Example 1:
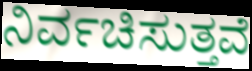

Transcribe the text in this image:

ನಿರ್ವಚಿಸುತ್ತವೆ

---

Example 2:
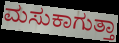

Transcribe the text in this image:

ಮಸುಕಾಗುತ್ತಾ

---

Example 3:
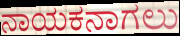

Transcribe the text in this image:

ನಾಯಕನಾಗಲು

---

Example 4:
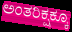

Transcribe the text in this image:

ಅಂತರಿಕ್ಷಕ್ಕೂ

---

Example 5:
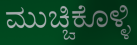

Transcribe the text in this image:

ಮುಚ್ಚಿಕೊಳ್ಳಿ